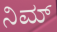
ನಿಮ್